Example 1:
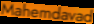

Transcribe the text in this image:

Mahemdavad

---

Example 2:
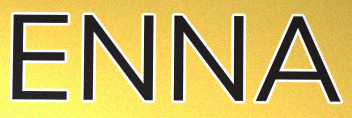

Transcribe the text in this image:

ENNA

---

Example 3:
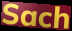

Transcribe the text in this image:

Sach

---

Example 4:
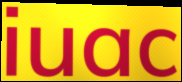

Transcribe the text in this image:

iuac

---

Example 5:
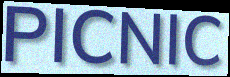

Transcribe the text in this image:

PICNIC